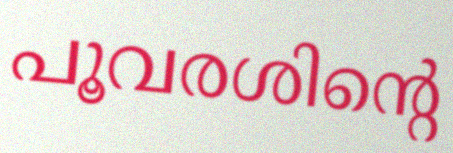
പൂവരശിന്റെ